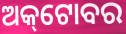
ଅକ୍‌ଟୋବର